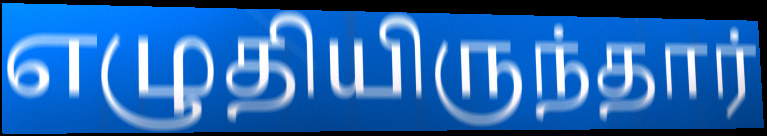
எழுதியிருந்தார்